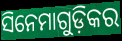
ସିନେମାଗୁଡ଼ିକର